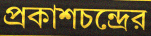
প্রকাশচন্দ্রের